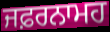
ਜਫ਼ਰਨਾਮਹ